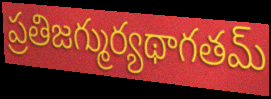
ప్రతిజగ్ముర్యథాగతమ్